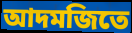
আদমজিতে